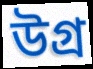
উগ্ৰ